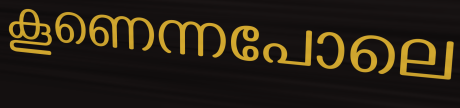
കൂണെന്നപോലെ